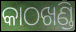
କାଠଖଣ୍ଡି